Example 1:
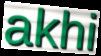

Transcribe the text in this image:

akhi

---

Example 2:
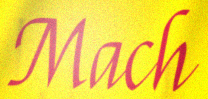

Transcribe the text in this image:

Mach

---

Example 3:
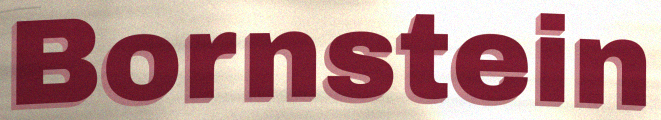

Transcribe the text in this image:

Bornstein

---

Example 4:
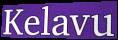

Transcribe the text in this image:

Kelavu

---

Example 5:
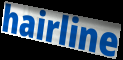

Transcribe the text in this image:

hairline